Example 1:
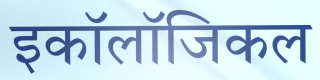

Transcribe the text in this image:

इकॉलॉजिकल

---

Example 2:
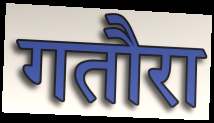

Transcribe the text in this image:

गतौरा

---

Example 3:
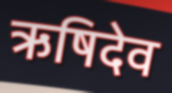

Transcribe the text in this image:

ऋषिदेव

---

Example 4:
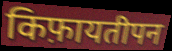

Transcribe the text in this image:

किफ़ायतीपन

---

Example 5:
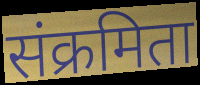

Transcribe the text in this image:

संक्रमिता